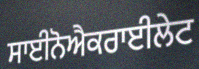
ਸਾਈਨੋਐਕਰਾਈਲੇਟ